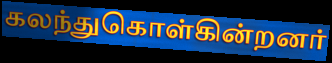
கலந்துகொள்கின்றனர்